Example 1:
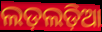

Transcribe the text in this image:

ଲଡ଼ଲଡ଼ିଆ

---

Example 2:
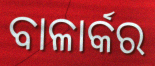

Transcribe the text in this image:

ବାଳାର୍କର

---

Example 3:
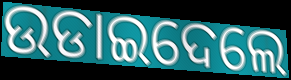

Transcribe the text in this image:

ଉଡାଇଦେଲେ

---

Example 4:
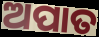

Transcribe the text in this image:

ଅପାତ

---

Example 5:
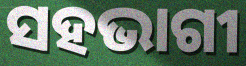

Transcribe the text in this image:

ସହଭାଗୀ